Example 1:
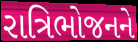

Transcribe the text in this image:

રાત્રિભોજનને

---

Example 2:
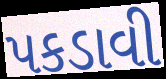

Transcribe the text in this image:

પકડાવી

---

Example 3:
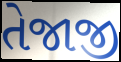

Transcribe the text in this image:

તેજાજી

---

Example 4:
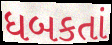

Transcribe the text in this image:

ધબકતાં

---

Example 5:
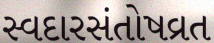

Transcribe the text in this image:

સ્વદારસંતોષવ્રત